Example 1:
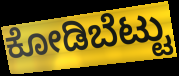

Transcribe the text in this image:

ಕೋಡಿಬೆಟ್ಟು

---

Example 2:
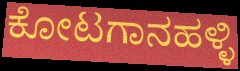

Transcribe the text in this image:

ಕೋಟಗಾನಹಳ್ಳಿ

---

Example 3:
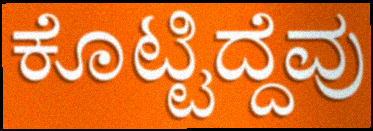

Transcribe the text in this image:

ಕೊಟ್ಟಿದ್ದೆವು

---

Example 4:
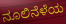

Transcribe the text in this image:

ನೂಲಿನೆಳೆಯ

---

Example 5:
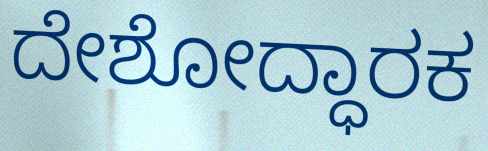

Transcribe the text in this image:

ದೇಶೋದ್ಧಾರಕ